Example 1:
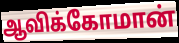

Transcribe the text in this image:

ஆவிக்கோமான்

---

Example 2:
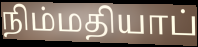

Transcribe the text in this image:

நிம்மதியாப்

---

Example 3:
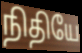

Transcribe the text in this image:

நிதியே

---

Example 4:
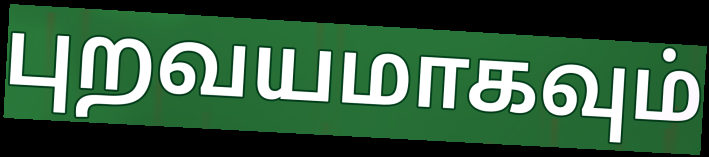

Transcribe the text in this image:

புறவயமாகவும்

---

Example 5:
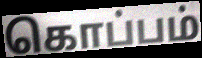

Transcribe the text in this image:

கொப்பம்